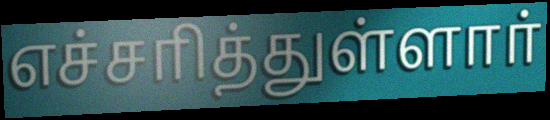
எச்சரித்துள்ளார்